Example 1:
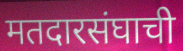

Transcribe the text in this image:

मतदारसंघाची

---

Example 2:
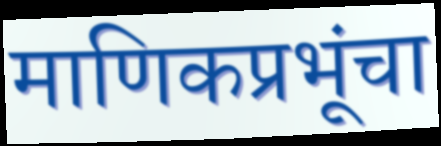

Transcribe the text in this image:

माणिकप्रभूंचा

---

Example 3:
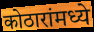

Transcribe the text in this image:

कोठारांमध्ये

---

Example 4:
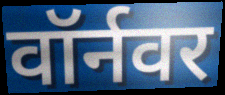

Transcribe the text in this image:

वॉर्नवर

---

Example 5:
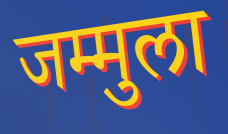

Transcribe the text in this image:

जम्मुला